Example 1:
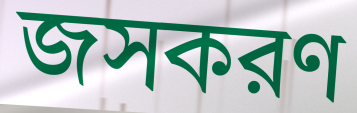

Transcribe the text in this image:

জসকরণ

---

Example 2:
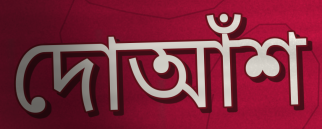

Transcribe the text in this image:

দোআঁশ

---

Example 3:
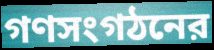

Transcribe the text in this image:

গণসংগঠনের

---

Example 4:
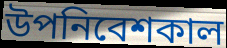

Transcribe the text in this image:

উপনিবেশকাল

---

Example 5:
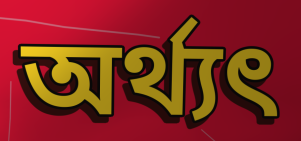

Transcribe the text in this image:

অর্থ্যৎ